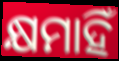
କ୍ଷମାହିଁ